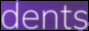
dents